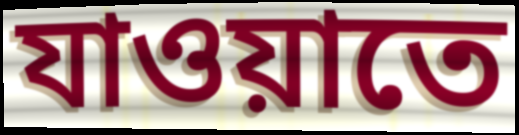
যাওয়াতে